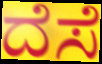
ದೆಸೆ